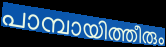
പാമ്പായിത്തീരും